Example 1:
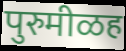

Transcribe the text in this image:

पुरुमीळह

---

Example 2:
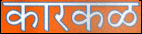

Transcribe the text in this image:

कारकळ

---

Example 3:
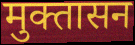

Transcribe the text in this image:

मुक्तासन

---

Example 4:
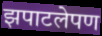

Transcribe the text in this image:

झपाटलेपण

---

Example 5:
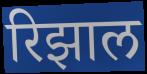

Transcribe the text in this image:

रिझाल